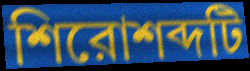
শিরোশব্দটি